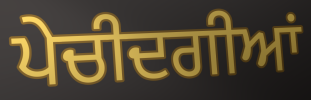
ਪੇਚੀਦਗੀਆਂ